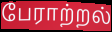
பேராற்றல்